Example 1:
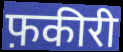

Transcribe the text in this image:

फ़कीरी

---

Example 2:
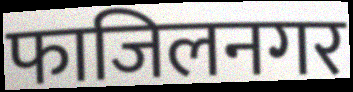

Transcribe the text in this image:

फाजिलनगर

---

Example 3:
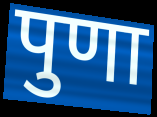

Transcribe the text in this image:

पुणा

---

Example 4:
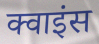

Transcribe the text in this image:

क्वाइंस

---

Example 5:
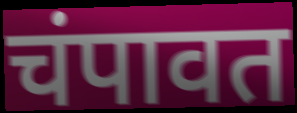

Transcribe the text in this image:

चंपावत